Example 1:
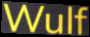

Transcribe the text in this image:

Wulf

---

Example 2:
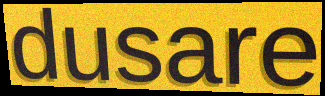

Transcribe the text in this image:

dusare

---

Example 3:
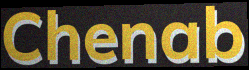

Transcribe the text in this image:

Chenab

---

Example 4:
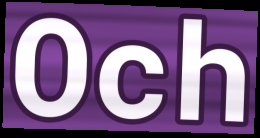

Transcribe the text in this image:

Och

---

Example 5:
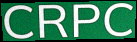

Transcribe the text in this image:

CRPC